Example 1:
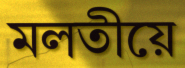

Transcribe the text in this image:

মলতীয়ে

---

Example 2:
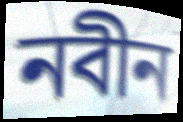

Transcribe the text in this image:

নবীন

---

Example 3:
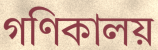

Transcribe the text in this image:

গণিকালয়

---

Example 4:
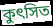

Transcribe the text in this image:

কুৎসিত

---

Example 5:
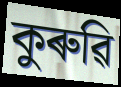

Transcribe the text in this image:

কুৰুৱি